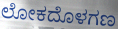
ಲೋಕದೊಳಗಣ